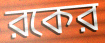
রকের